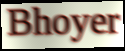
Bhoyer